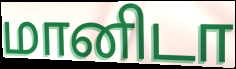
மானிடா